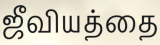
ஜீவியத்தை